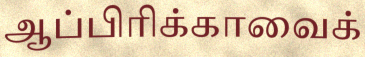
ஆப்பிரிக்காவைக்